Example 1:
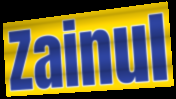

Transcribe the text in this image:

Zainul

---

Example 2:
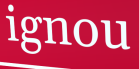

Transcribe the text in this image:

ignou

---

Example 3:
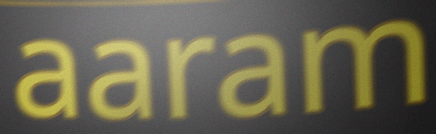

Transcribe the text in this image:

aaram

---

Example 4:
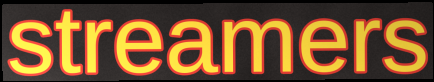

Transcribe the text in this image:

streamers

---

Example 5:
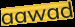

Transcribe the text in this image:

aawad